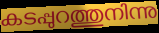
കടപ്പുറത്തുനിന്നു